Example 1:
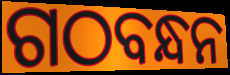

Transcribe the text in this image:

ଗଠବନ୍ଧନ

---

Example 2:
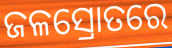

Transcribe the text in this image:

ଜଳସ୍ରୋତରେ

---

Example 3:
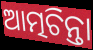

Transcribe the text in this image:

ଆତ୍ମଚିନ୍ତା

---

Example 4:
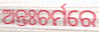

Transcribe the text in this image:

ଅନ୍ତଃଚର୍ମରେ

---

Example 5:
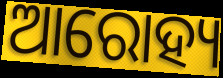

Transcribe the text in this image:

ଆରୋହ୍ୟ